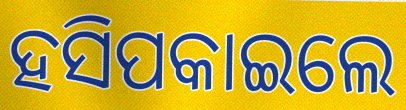
ହସିପକାଇଲେ